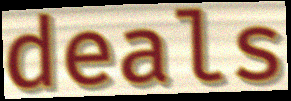
deals